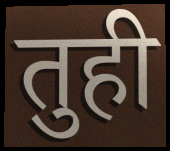
तुही